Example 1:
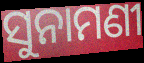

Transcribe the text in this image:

ସୁନାମଣୀ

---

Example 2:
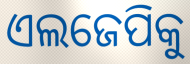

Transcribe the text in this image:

ଏଲଜେପିକୁ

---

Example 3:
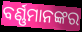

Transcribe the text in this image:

ବର୍ଣ୍ଣମାନଙ୍କର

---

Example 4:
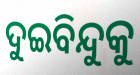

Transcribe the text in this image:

ଦୁଇବିନ୍ଦୁକୁ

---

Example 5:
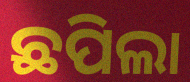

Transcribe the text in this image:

ଛପିଲା